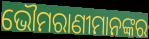
ଭୌମରାଣୀମାନଙ୍କର